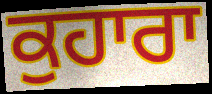
ਕੁਹਾਰਾ